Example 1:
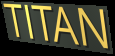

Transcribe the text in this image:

TITAN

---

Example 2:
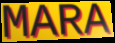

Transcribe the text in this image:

MARA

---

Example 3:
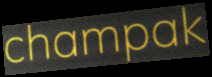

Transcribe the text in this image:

champak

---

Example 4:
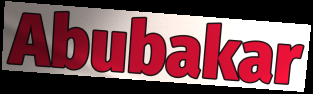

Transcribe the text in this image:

Abubakar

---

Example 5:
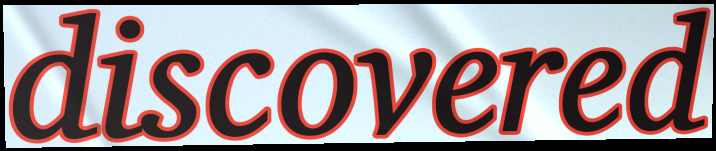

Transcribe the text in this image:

discovered